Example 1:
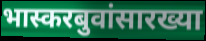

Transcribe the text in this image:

भास्करबुवांसारख्या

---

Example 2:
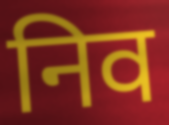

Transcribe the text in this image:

निव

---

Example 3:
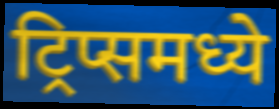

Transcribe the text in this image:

ट्रिप्समध्ये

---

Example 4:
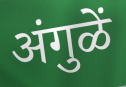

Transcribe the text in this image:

अंगुळें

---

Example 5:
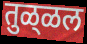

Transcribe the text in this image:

तुळ्‌ळल